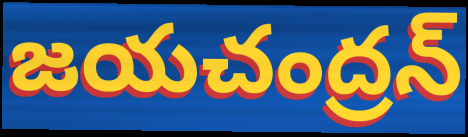
జయచంద్రన్